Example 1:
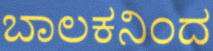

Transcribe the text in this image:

ಬಾಲಕನಿಂದ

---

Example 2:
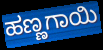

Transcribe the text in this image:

ಹಣ್ಣಗಾಯಿ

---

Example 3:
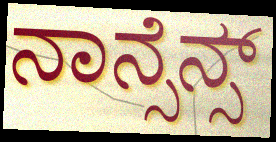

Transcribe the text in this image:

ನಾನ್ಸೆನ್ಸ್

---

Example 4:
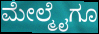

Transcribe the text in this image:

ಮೇಲ್ಮೈಗೂ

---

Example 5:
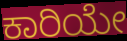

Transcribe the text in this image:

ಕಾರಿಯೇ